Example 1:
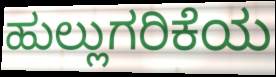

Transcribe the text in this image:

ಹುಲ್ಲುಗರಿಕೆಯ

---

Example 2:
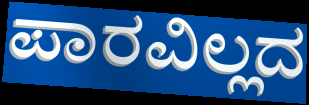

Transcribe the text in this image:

ಪಾರವಿಲ್ಲದ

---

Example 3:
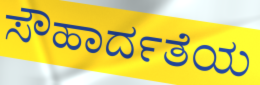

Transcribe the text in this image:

ಸೌಹಾರ್ದತೆಯ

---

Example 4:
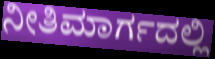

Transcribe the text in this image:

ನೀತಿಮಾರ್ಗದಲ್ಲಿ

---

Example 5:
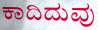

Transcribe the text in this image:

ಕಾದಿದುವು